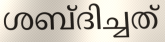
ശബ്ദിച്ചത്